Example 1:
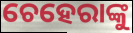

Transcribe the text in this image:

ଚେହେରାଙ୍କୁ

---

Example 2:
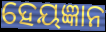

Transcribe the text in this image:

ହେୟଜ୍ଞାନ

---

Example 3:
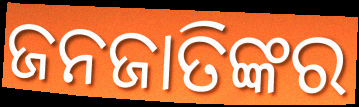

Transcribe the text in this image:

ଜନଜାତିଙ୍କର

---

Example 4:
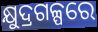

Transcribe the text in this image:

କ୍ଷୁଦ୍ରଗଳ୍ପରେ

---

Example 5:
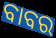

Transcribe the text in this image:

ବାବର